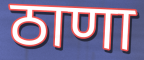
ठाणा